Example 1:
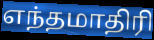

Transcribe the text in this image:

எந்தமாதிரி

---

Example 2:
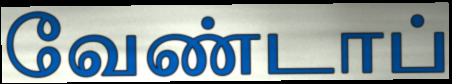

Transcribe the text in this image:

வேண்டாப்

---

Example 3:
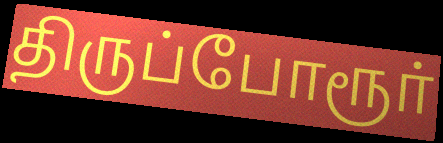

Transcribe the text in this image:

திருப்போரூர்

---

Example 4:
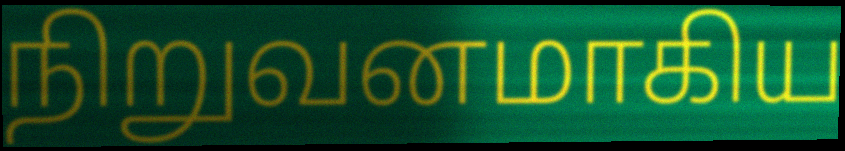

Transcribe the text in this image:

நிறுவனமாகிய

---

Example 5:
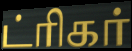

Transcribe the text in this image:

ட்ரிகர்